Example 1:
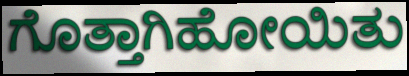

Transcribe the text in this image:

ಗೊತ್ತಾಗಿಹೋಯಿತು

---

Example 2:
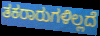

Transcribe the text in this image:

ತಕರಾರುಗಳಿಲ್ಲದೆ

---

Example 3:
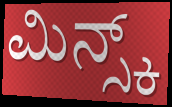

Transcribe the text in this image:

ಮಿನ್ಸ್ಕ್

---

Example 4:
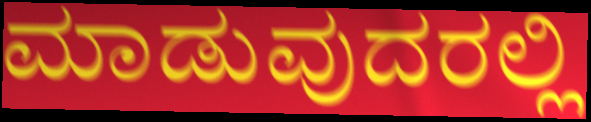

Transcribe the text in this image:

ಮಾಡುವುದರಲ್ಲಿ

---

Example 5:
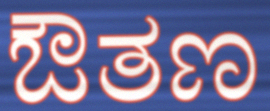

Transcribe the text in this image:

ಔತಣ